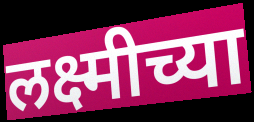
लक्ष्मीच्या